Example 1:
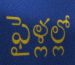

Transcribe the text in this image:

ఫైళ్లల్లో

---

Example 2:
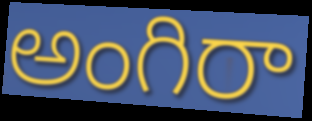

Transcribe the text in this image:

అంగిరా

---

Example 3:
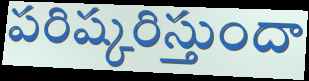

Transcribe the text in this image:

పరిష్కరిస్తుందా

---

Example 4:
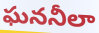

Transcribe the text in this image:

ఘననీలా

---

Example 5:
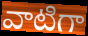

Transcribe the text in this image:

వాటిగా